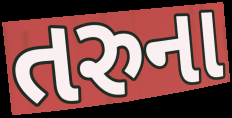
તરુના